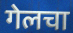
गेलचा